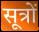
सूत्रों